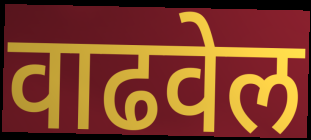
वाढवेल